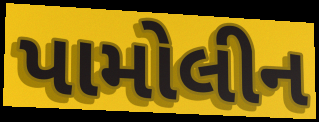
પામોલીન